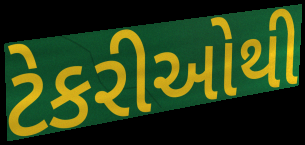
ટેકરીઓથી